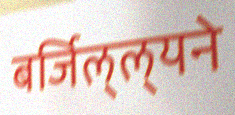
बर्जिल्ल्यने